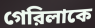
গেরিলাকে